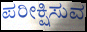
ಪರೀಕ್ಷಿಸುವ